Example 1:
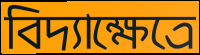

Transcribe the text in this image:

বিদ্যাক্ষেত্রে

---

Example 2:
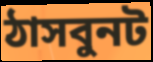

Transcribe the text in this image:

ঠাসবুনট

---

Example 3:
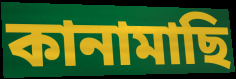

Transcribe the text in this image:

কানামাছি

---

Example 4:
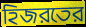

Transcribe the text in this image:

হিজরতের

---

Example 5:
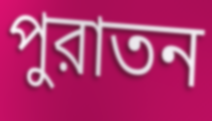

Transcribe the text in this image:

পুরাতন